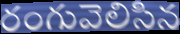
రంగువెలిసిన